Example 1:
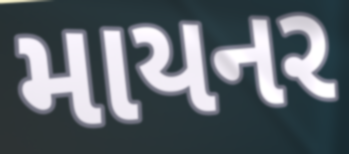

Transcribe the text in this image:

માયનર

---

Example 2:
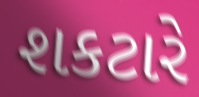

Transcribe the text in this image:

શકટારે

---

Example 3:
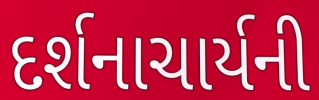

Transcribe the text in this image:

દર્શનાચાર્યની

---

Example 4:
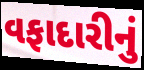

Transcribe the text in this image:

વફાદારીનું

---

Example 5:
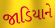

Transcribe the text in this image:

જાડિયાને